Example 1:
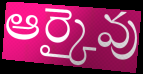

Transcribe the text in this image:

ఆర్కైవు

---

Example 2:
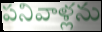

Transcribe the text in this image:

పనివాళ్లను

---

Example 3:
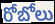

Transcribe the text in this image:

రోబోలు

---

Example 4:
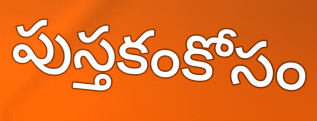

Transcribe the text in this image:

పుస్తకంకోసం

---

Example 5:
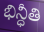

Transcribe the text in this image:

భిన్ధీతి